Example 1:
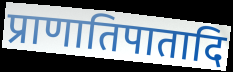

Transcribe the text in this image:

प्राणातिपातादि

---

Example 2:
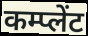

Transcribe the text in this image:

कम्प्लेंट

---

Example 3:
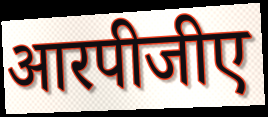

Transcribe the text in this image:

आरपीजीए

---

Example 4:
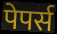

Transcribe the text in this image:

पेपर्स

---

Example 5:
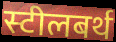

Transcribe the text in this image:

स्टीलबर्थ